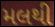
મલથી